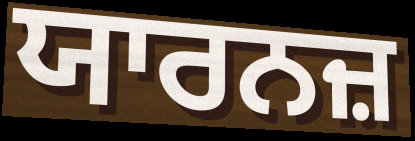
ਯਾਰਨਜ਼